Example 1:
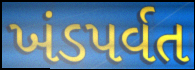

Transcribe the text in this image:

ખંડપર્વત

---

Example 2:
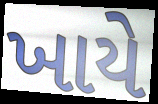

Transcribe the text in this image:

ખાયે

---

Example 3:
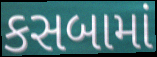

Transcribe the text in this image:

કસબામાં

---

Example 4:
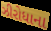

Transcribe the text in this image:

ઝીરોધાના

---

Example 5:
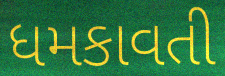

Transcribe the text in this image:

ધમકાવતી